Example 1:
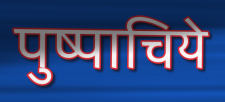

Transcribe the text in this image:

पुष्पाचिये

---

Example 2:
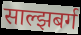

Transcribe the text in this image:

साल्झबर्ग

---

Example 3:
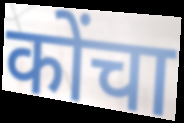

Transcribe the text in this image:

कोंचा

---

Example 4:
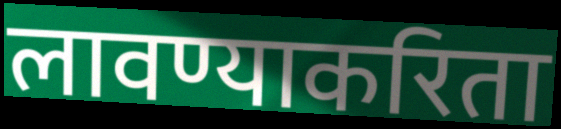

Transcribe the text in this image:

लावण्याकरिता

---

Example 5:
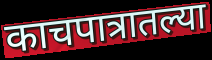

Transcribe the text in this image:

काचपात्रातल्या